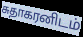
சுதாகரனிடம்